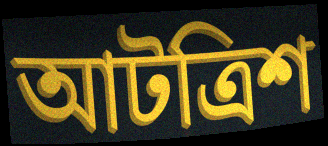
আটত্রিশ